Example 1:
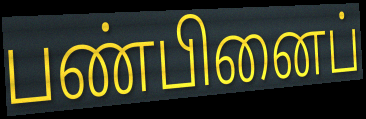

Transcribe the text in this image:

பண்பினைப்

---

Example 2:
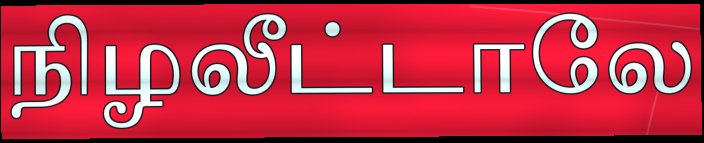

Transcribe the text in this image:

நிழலீட்டாலே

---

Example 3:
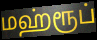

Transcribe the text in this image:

மஹ்ரூப்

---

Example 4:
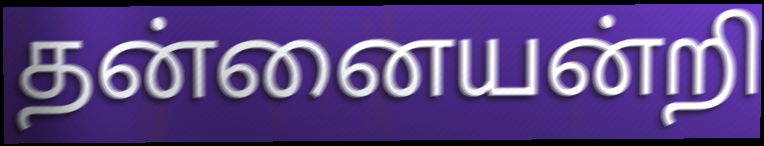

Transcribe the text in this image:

தன்னையன்றி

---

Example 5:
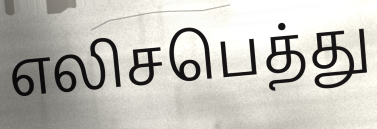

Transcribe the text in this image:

எலிசபெத்து